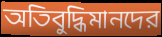
অতিবুদ্ধিমানদের